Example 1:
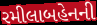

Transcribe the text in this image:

રમીલાબહેનની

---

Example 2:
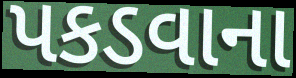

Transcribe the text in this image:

પકડવાના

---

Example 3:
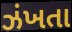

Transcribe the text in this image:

ઝંખતા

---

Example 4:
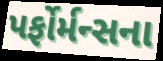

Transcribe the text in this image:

પર્ફોર્મન્સના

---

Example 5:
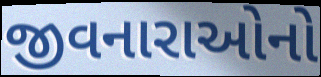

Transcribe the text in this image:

જીવનારાઓનો